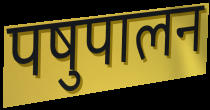
पषुपालन